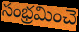
సంభ్రమించె